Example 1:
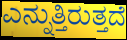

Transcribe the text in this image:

ಎನ್ನುತ್ತಿರುತ್ತದೆ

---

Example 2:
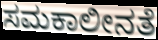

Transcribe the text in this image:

ಸಮಕಾಲೀನತೆ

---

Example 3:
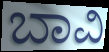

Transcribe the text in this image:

ಬಾವಿ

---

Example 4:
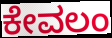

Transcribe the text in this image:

ಕೇವಲಂ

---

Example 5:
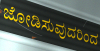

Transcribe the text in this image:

ಜೋಡಿಸುವುದರಿಂದ